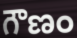
గౌణం